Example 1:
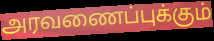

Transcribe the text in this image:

அரவணைப்புக்கும்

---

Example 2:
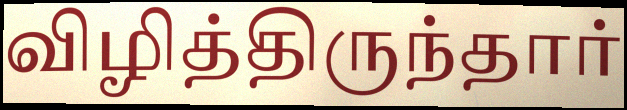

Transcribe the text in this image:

விழித்திருந்தார்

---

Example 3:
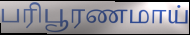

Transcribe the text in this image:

பரிபூரணமாய்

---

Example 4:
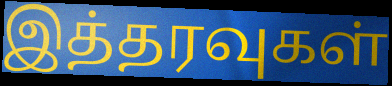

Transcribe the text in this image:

இத்தரவுகள்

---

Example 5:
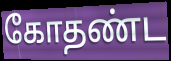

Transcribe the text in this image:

கோதண்ட